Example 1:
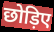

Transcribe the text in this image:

छोड़िए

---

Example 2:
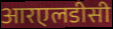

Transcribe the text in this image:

आरएलडीसी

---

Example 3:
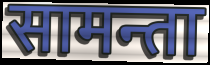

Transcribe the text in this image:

सामन्ता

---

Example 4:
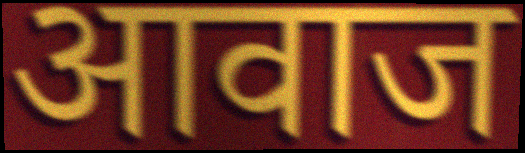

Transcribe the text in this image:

आवाज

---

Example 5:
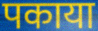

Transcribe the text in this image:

पकाया